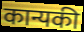
कान्यकी